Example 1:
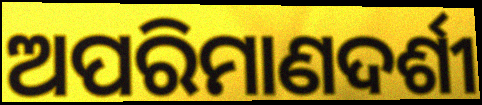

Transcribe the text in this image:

ଅପରିମାଣଦର୍ଶୀ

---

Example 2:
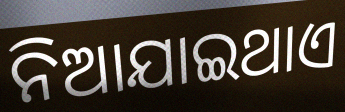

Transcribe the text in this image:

ନିଆଯାଇଥାଏ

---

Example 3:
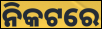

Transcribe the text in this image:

ନିକଟରେ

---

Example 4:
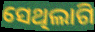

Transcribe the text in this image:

ସେଥିଲାଗି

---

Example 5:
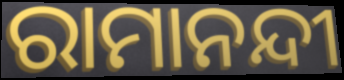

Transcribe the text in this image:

ରାମାନନ୍ଦୀ